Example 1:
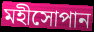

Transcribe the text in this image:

মহীসোপান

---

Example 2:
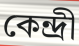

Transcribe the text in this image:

কেন্দ্রী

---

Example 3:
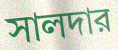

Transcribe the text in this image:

সালদার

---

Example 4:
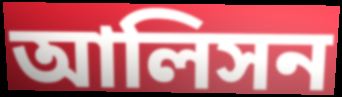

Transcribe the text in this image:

আলিসন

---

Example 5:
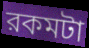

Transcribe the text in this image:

রকমটা